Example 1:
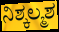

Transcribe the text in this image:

ನಿಶ್ಕಲ್ಮಶ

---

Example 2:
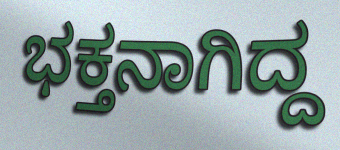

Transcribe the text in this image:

ಭಕ್ತನಾಗಿದ್ದ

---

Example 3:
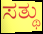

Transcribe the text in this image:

ಸತ್ಥು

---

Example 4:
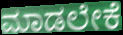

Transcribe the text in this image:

ಮಾಡಲೇಕೆ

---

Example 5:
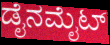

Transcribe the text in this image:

ಡೈನಮೈಟ್